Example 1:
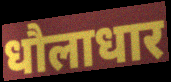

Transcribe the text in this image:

धौलाधार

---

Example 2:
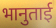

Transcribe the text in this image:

भानुताई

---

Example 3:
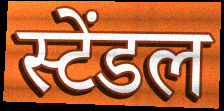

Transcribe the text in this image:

स्टेंडल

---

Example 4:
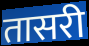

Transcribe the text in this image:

तासरी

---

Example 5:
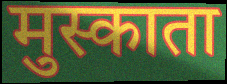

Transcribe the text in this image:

मुस्काता